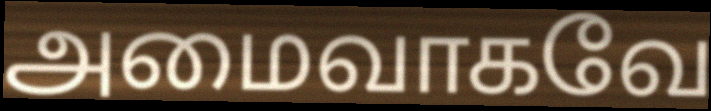
அமைவாகவே